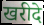
खरीदे